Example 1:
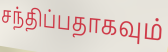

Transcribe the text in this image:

சந்திப்பதாகவும்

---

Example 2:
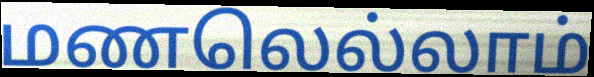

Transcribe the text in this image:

மணலெல்லாம்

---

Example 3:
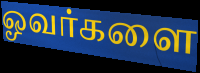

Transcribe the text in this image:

ஓவர்களை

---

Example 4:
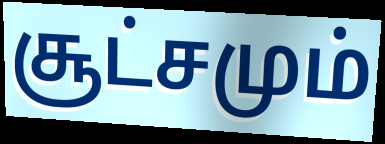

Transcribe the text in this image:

சூட்சமும்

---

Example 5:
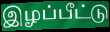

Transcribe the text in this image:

இழப்பீட்டு